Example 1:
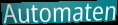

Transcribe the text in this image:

Automaten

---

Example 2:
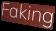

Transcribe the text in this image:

Faking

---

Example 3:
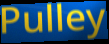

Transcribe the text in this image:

Pulley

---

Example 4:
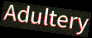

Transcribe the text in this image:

Adultery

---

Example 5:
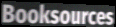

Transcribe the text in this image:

Booksources